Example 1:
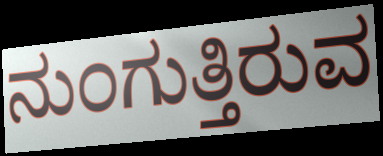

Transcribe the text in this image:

ನುಂಗುತ್ತಿರುವ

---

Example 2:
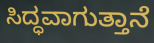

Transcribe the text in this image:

ಸಿದ್ಧವಾಗುತ್ತಾನೆ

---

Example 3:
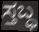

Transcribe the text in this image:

ಸ್ತಬ್ಧ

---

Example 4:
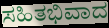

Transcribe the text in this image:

ಸಹಿತಭಿವಾದ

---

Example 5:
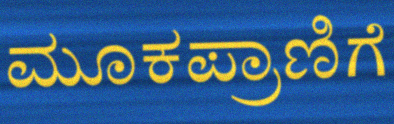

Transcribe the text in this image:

ಮೂಕಪ್ರಾಣಿಗೆ